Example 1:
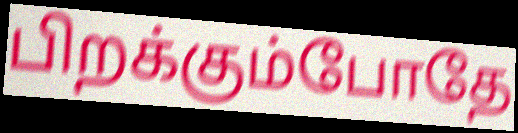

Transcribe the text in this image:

பிறக்கும்போதே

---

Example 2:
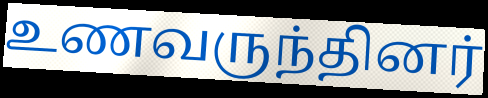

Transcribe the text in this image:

உணவருந்தினர்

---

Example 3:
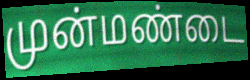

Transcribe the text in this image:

முன்மண்டை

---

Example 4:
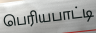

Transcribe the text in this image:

பெரியபாட்டி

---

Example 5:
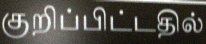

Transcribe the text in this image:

குறிப்பிட்டதில்